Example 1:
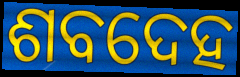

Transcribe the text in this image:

ଶବଦେହ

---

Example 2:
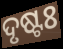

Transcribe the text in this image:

ଦୃଷ୍ଟଃ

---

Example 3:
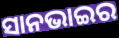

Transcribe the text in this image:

ସାନଭାଇର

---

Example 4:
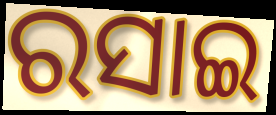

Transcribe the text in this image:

ରସାଇ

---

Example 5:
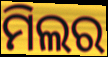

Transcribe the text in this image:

ମିଲର